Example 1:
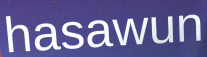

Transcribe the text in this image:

hasawun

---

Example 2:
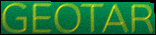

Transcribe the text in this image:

GEOTAR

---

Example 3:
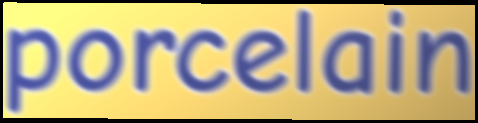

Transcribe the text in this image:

porcelain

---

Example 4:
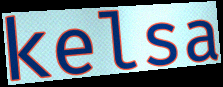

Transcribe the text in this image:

kelsa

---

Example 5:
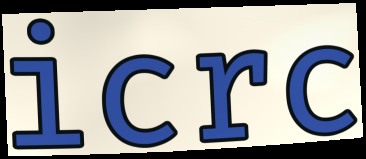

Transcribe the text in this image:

icrc